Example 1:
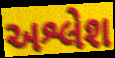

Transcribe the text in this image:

અશ્લેશ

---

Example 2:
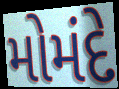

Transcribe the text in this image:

મોમંદે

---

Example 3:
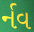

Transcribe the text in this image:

ર્નવ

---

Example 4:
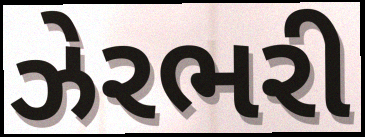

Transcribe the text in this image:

ઝેરભરી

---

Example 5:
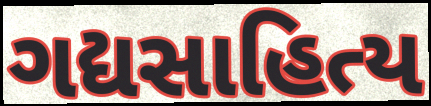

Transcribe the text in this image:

ગદ્યસાહિત્ય